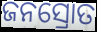
ଜନସ୍ରୋତ